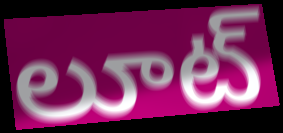
లూట్